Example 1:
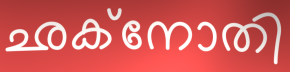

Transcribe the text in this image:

ഛക്നോതി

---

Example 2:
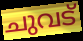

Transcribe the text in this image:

ചുവട്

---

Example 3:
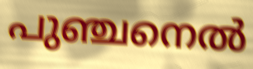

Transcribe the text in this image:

പുഞ്ചനെൽ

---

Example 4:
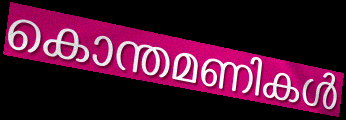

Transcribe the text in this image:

കൊന്തമണികൾ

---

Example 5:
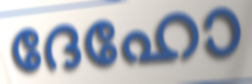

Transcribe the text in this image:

ദേഹോ